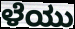
ಳೆಯು